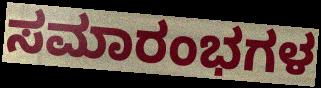
ಸಮಾರಂಭಗಳ